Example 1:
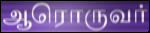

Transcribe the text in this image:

ஆரொருவர்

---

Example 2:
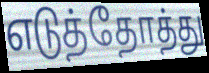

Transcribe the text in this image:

எடுத்தோத்து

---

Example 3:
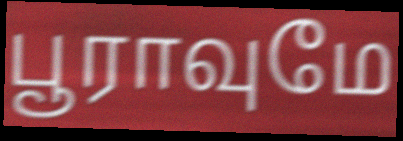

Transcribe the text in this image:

பூராவுமே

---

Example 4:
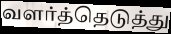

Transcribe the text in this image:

வளர்த்தெடுத்து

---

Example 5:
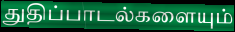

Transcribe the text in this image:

துதிப்பாடல்களையும்